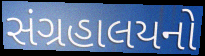
સંગ્રહાલયનો